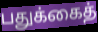
பதுக்கைத்